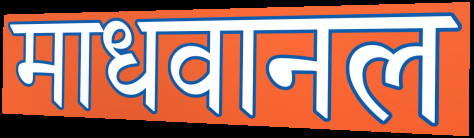
माधवानल